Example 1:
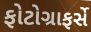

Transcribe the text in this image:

ફોટોગ્રાફર્સે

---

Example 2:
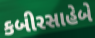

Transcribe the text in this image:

કબીરસાહેબે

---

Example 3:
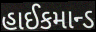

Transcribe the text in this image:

હાઈકમાન્ડ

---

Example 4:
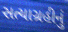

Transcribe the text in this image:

સત્યાગ્રહીનું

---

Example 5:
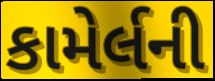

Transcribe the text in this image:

કામેર્લની